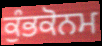
ਕੁੰਭਕੋਨਮ